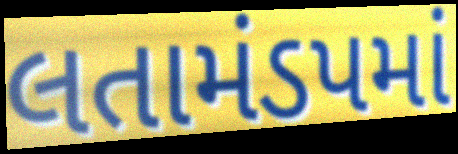
લતામંડપમાં